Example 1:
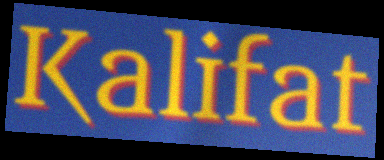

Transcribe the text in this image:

Kalifat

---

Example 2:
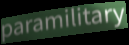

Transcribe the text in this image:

paramilitary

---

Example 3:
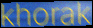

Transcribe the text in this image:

khorak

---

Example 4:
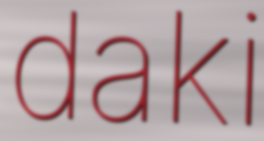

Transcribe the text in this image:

daki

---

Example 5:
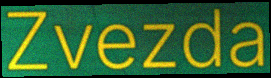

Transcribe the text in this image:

Zvezda